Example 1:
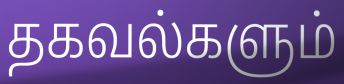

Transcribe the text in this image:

தகவல்களும்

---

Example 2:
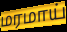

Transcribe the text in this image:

மரமாய்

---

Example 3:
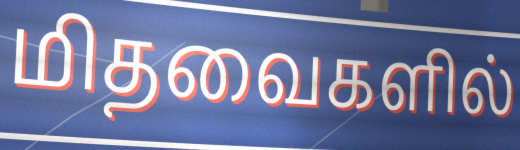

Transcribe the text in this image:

மிதவைகளில்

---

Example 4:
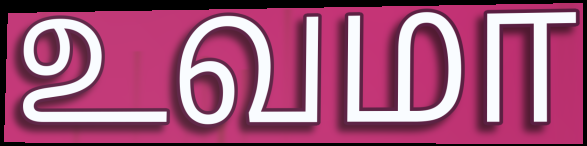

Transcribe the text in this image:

உவமா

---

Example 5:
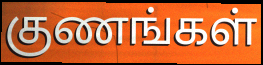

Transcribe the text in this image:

குணங்கள்